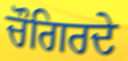
ਚੌਗਿਰਦੇ